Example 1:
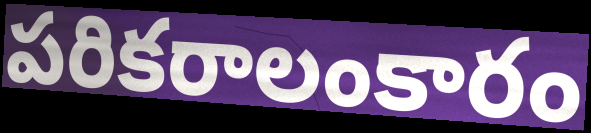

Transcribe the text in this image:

పరికరాలంకారం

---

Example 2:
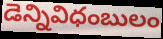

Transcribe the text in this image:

డెన్నివిధంబులం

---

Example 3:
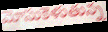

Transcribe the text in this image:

మోసుకెళుతున్న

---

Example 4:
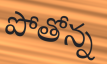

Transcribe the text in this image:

పోతోన్న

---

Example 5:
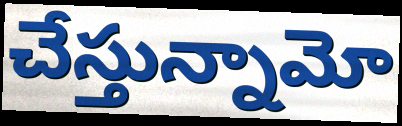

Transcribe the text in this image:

చేస్తున్నామో